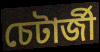
চেটাৰ্জী